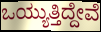
ಒಯ್ಯುತ್ತಿದ್ದೇವೆ